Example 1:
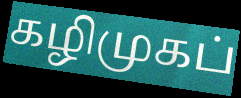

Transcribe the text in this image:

கழிமுகப்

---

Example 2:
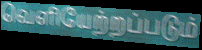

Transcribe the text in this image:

வெளியேற்றப்படும்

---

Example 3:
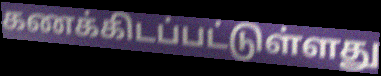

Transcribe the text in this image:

கணக்கிடப்பட்டுள்ளது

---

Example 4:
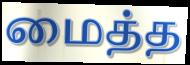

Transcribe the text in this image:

மைத்த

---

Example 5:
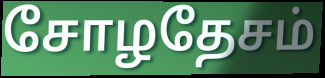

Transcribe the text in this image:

சோழதேசம்